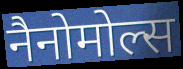
नैनोमोल्स